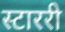
स्टाररी